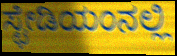
ಸ್ಟೇಡಿಯಂನಲ್ಲಿ